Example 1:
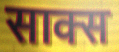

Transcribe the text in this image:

साक्स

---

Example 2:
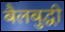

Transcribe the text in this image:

बैलबुद्धी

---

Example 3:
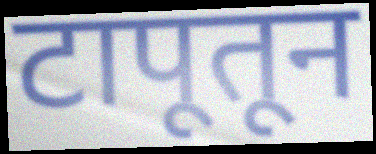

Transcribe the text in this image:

टापूतून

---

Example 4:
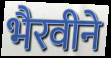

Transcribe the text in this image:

भैरवीने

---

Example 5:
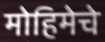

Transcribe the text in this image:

मोहिमेचे